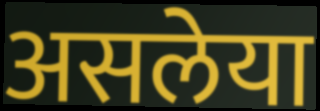
असलेया